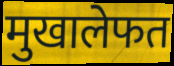
मुखालेफत